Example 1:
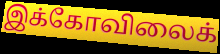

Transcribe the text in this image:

இக்கோவிலைக்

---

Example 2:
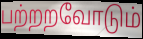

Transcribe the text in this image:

பற்றறவோடும்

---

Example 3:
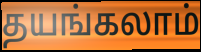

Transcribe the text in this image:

தயங்கலாம்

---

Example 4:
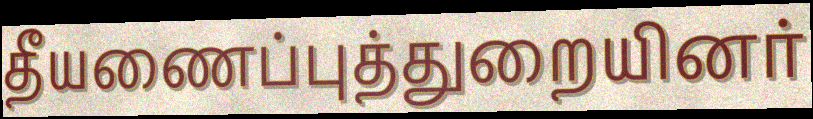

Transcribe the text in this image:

தீயணைப்புத்துறையினர்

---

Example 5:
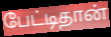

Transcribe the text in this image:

பேட்டிதான்